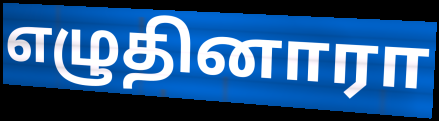
எழுதினாரா